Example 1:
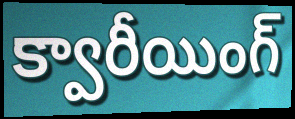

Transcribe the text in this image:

క్వారీయింగ్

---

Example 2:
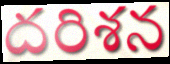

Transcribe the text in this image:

దరిశన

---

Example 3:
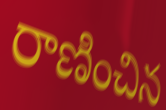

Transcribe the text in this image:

రాణించిన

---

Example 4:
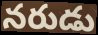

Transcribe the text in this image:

నరుడు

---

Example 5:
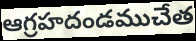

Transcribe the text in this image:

ఆగ్రహదండముచేత